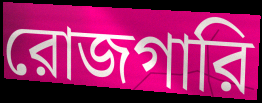
রোজগারি